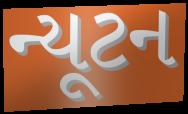
ન્યૂટન